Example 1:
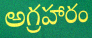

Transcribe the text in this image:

అగ్రహారం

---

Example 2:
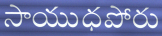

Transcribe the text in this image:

సాయుధపోరు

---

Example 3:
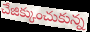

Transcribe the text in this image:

చేజిక్కుంచుకున్న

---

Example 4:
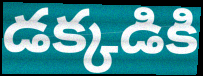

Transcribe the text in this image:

డక్కడికి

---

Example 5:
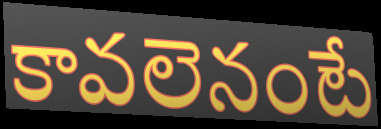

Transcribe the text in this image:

కావలెనంటే